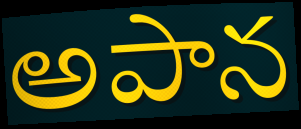
అపాన